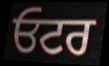
ਓਟਰ